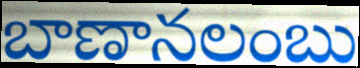
బాణానలంబు